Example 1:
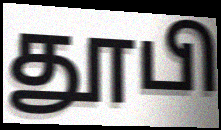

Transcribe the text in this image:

தூபி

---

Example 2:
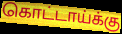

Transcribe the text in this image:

கொட்டாய்க்கு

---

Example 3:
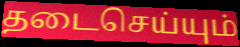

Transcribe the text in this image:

தடைசெய்யும்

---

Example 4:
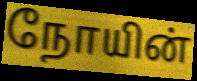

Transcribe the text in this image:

நோயின்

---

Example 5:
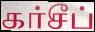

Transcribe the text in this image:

கர்சீப்